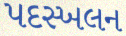
પદસ્ખલન